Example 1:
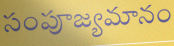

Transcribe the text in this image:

సంపూజ్యమానం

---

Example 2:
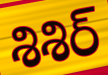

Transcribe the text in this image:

శిశిర్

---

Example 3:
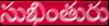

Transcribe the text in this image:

సుఖింతురు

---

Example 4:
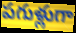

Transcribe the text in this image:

పగుళ్లుగా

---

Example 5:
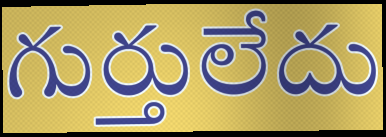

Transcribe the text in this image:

గుర్తులేదు